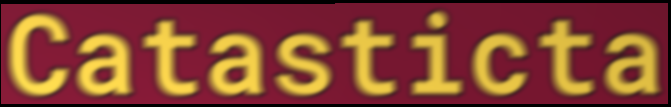
Catasticta